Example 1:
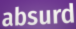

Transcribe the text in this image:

absurd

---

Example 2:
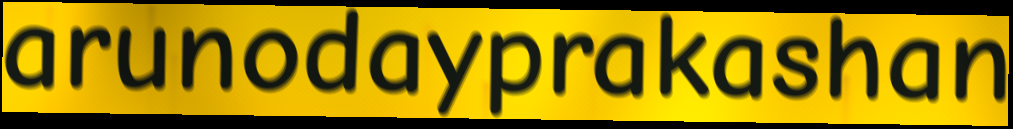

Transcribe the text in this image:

arunodayprakashan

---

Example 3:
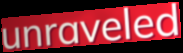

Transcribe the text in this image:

unraveled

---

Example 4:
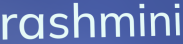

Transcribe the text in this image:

rashmini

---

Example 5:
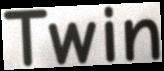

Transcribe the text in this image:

Twin